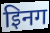
इिनग